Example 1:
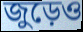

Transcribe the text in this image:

জুড়েও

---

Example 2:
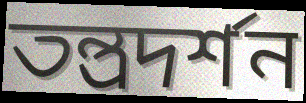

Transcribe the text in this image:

তন্ত্রদর্শন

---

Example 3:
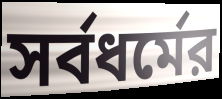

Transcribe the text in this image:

সর্বধর্মের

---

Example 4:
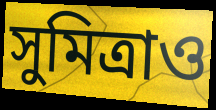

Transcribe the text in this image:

সুমিত্রাও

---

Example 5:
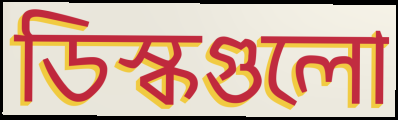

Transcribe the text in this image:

ডিস্কগুলো